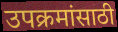
उपक्रमांसाठी